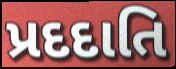
પ્રદદાતિ